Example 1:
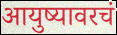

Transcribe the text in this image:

आयुष्यावरचं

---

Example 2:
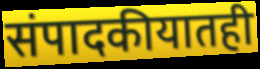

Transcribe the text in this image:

संपादकीयातही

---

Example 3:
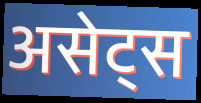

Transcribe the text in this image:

असेट्स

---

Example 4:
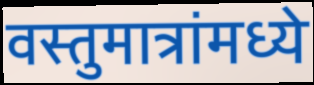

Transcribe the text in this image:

वस्तुमात्रांमध्ये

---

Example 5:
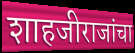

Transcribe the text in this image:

शाहजीराजांचा